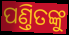
ପଣ୍ତିତଙ୍କୁ